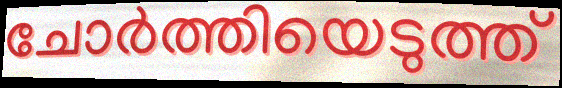
ചോർത്തിയെടുത്ത്